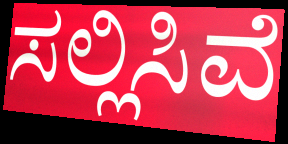
ಸಲ್ಲಿಸಿವೆ